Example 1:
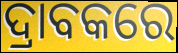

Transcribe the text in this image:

ଦ୍ରାବକରେ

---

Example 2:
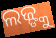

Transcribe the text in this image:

ଲଜ୍ଙ୍କୁ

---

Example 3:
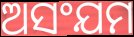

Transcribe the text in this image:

ଅସଂଯମ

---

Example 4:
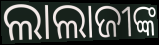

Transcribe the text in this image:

ଲାଲାଜୀଙ୍କ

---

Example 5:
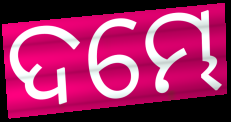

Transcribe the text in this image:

ଦମ୍ଭେ